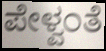
ಪೇಳ್ವಂತೆ